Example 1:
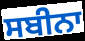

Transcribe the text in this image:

ਸਬੀਨਾ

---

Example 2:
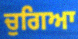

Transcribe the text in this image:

ਚੁਗਿਆ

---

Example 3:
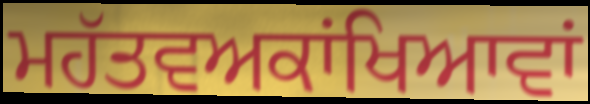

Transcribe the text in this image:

ਮਹੱਤਵਅਕਾਂਖਿਆਵਾਂ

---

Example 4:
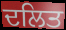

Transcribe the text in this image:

ਦਲਿਤ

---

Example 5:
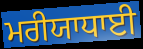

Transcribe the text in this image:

ਮਰੀਯਾਧਾਈ